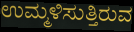
ಉಮ್ಮಳಿಸುತ್ತಿರುವ